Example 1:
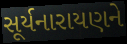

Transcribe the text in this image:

સૂર્યનારાયણને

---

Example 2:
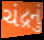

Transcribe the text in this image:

ચંદ્રનું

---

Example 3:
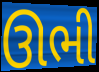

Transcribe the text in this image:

ઊભી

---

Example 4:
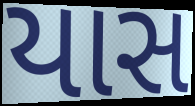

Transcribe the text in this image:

યાસ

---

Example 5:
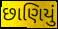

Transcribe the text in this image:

છાણિયું